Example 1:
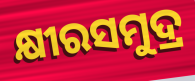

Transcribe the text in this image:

କ୍ଷୀରସମୁଦ୍ର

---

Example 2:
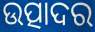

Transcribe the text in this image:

ଉତ୍ପାଦର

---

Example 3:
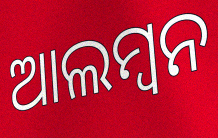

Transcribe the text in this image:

ଆଲମ୍ୱନ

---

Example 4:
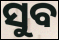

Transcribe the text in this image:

ସୁବ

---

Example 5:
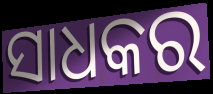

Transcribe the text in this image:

ସାଧକର